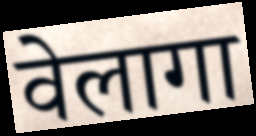
वेलागा